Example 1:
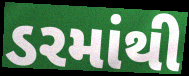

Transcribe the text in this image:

ડરમાંથી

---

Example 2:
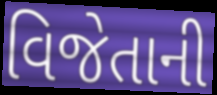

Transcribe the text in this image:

વિજેતાની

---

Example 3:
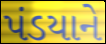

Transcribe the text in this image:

પંડયાને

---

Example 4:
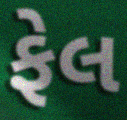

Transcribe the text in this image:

ફેલ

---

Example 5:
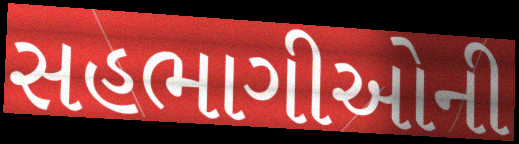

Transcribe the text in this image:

સહભાગીઓની